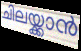
ചിലയ്ക്കാൻ